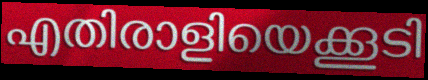
എതിരാളിയെക്കൂടി